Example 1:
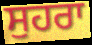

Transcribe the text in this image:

ਸੁਹਰਾ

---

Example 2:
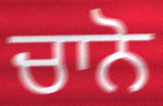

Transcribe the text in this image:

ਚਾਨੋ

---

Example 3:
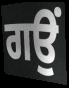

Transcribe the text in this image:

ਗਉਂ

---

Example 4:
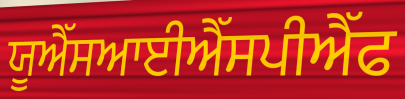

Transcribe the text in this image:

ਯੂਐੱਸਆਈਐੱਸਪੀਐੱਫ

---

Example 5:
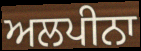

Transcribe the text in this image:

ਅਲਪੀਨਾ